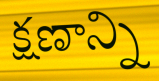
క్షణాన్ని